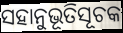
ସହାନୁଭୂତିସୂଚକ